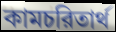
কামচরিতার্থ